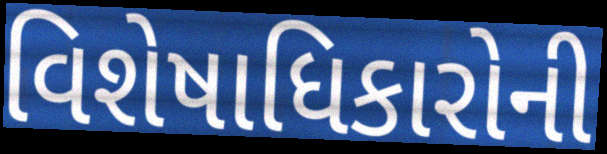
વિશેષાધિકારોની